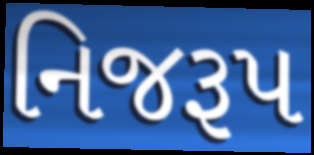
નિજરૂપ